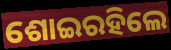
ଶୋଇରହିଲେ